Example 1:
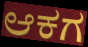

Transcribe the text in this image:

ಆಕಗ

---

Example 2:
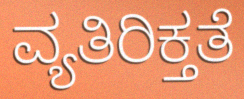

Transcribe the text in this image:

ವ್ಯತಿರಿಕ್ತತೆ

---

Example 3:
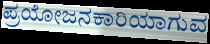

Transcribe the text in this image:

ಪ್ರಯೋಜನಕಾರಿಯಾಗುವ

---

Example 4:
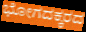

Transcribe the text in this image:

ಭೋಗದಕ್ಕರದ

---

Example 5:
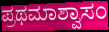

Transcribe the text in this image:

ಪ್ರಥಮಾಶ್ವಾಸಂ